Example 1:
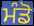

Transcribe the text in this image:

ਮੰਡੋ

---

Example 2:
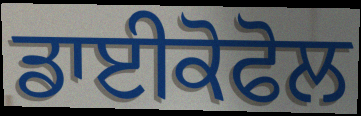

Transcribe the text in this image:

ਡਾਈਕੋਫੋਲ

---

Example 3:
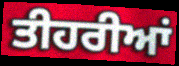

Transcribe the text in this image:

ਤੀਹਰੀਆਂ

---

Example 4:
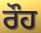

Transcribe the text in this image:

ਰੌਹ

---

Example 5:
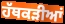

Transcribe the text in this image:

ਹੱਥਕੜੀਆਂ